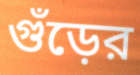
গুঁড়ের